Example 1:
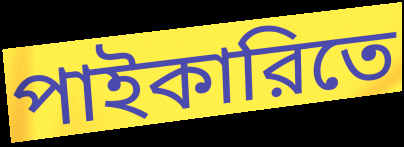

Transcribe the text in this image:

পাইকারিতে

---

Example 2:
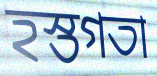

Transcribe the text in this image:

হস্তগতা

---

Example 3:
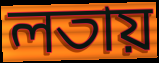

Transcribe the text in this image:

লতায়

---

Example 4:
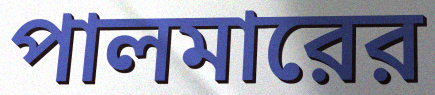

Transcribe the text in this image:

পালমারের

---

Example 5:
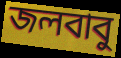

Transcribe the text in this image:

জলবাবু